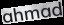
ahmad